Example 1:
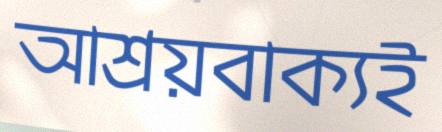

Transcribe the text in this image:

আশ্ৰয়বাক্যই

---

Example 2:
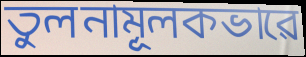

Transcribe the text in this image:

তুলনামূলকভাৱে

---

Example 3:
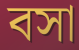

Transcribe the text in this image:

বসা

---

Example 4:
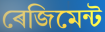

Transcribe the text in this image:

ৰেজিমেন্ট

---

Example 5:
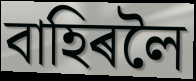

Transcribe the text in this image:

বাহিৰলৈ